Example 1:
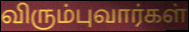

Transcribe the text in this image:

விரும்புவார்கள்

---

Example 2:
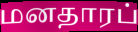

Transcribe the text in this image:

மனதாரப்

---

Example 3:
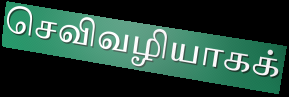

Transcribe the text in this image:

செவிவழியாகக்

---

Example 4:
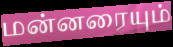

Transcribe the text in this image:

மன்னரையும்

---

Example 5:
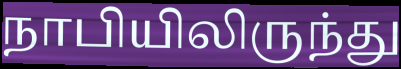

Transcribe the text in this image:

நாபியிலிருந்து